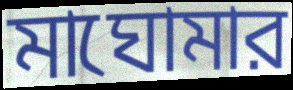
মাঘোমার